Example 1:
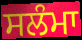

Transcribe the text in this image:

ਸਲੰਮਾ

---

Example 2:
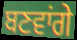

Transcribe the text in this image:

ਬਣਵਾਂਗੇ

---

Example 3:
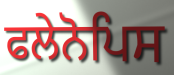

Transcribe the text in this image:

ਫਲੇਨੋਪਿਸ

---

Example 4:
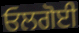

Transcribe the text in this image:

ਓਲਗੋਈ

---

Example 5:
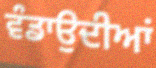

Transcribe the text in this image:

ਵੰਡਾਉਦੀਆਂ